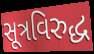
સૂત્રવિરુદ્ધ